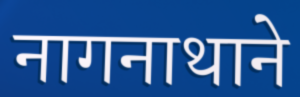
नागनाथाने